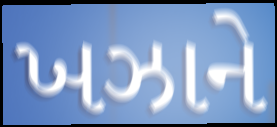
ખઝાને